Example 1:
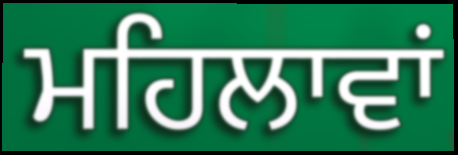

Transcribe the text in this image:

ਮਹਿਲਾਵਾਂ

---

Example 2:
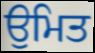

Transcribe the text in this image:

ਉਮਿਤ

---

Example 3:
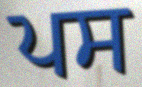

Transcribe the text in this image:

ਪਸ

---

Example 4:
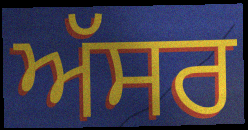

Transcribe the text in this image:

ਅੱਸਰ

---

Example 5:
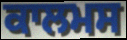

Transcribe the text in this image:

ਕਾਲਮਸ